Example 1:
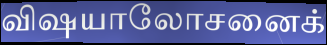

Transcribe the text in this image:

விஷயாலோசனைக்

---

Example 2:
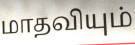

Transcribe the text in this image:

மாதவியும்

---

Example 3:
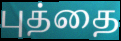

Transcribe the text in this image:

புத்தை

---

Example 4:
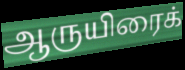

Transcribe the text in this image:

ஆருயிரைக்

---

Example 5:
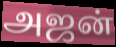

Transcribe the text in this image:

அஜன்